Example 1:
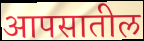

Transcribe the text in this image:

आपसातील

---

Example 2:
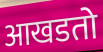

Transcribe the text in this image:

आखडतो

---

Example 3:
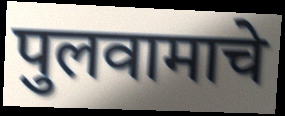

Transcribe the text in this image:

पुलवामाचे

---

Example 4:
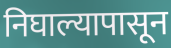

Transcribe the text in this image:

निघाल्यापासून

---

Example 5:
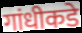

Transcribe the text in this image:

गांधीकडे